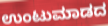
ಉಂಟುಮಾಡದ